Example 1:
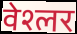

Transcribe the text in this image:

वेश्लर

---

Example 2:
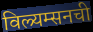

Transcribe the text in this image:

विल्यम्सनची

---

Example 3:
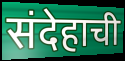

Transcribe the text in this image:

संदेहाची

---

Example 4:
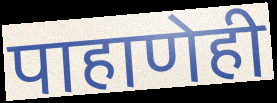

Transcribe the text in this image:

पाहाणेही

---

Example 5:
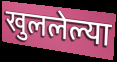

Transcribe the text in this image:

खुललेल्या